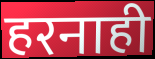
हरनाही